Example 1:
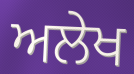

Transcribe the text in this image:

ਅਲੇਖ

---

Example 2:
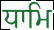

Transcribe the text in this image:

ਧਾਮਿ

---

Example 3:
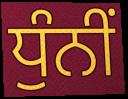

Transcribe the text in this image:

ਧੁੰਨੀਂ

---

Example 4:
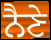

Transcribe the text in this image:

ਨੈਣੇ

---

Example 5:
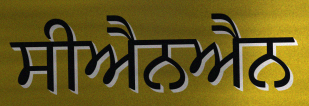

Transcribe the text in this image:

ਸੀਐਨਐਨ